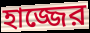
হাজ্জের